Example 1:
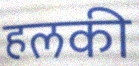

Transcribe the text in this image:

हलकी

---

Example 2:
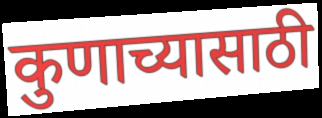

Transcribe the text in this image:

कुणाच्यासाठी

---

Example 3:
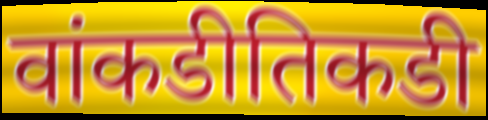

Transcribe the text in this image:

वांकडीतिकडी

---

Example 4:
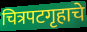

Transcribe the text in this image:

चित्रपटगृहाचे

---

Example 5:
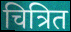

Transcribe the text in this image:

चित्रित